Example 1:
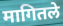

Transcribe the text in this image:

मागितले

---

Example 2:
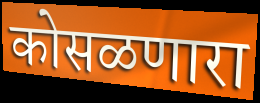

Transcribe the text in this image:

कोसळणारा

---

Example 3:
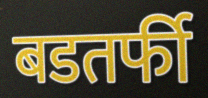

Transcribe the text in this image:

बडतर्फी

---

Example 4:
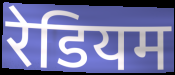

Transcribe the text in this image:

रेडियम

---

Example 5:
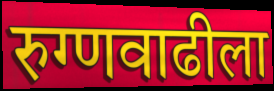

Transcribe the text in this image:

रुग्णवाढीला